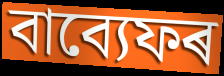
বাব্যেফৰ